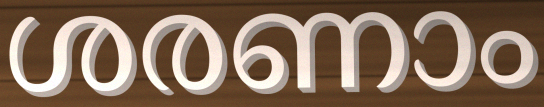
ശരണാം